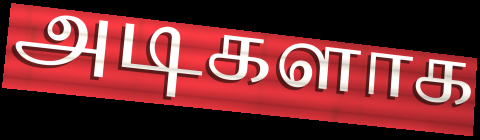
அடிகளாக